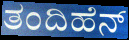
ತಂದಿಹೆನ್